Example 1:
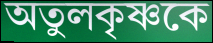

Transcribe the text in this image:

অতুলকৃষ্ণকে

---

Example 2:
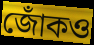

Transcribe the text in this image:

জোঁকও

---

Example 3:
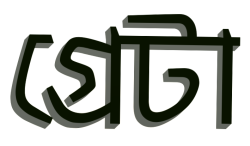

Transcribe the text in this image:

গ্রেটা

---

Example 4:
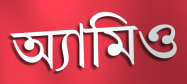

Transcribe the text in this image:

অ্যামিও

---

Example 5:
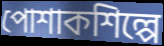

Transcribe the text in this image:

পোশাকশিল্পে